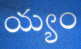
య్యం